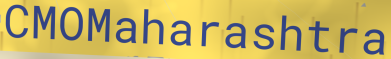
CMOMaharashtra